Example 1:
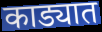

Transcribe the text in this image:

काड्यात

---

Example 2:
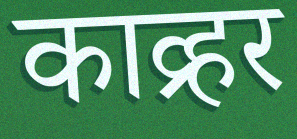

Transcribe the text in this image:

काव्र्हर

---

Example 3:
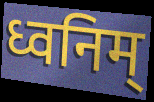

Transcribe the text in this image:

ध्वनिम्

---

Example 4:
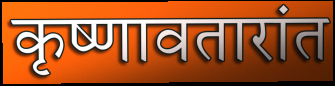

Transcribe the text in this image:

कृष्णावतारांत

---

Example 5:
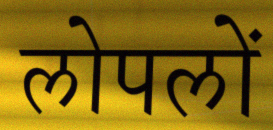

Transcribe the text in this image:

लोपलों